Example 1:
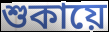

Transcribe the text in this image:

শুকায়ে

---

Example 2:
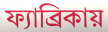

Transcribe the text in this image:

ফ্যাব্রিকায়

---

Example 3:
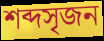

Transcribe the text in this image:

শব্দসৃজন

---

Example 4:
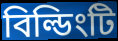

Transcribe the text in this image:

বিল্ডিংটি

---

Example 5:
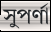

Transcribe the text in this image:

সুপর্ণা